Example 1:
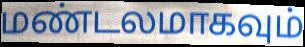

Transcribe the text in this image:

மண்டலமாகவும்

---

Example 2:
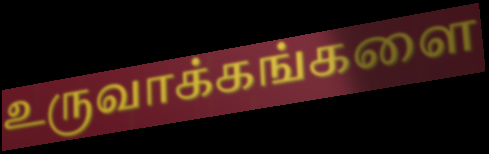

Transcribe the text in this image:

உருவாக்கங்களை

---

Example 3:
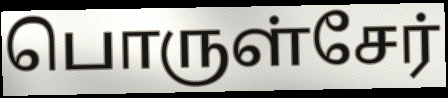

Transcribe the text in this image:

பொருள்சேர்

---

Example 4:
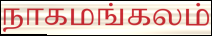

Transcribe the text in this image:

நாகமங்கலம்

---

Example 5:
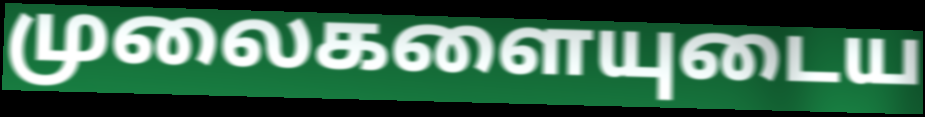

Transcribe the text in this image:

முலைகளையுடைய